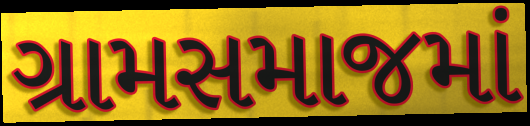
ગ્રામસમાજમાં